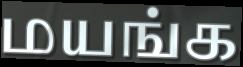
மயங்க